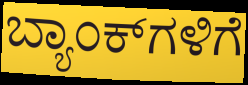
ಬ್ಯಾಂಕ್‌ಗಳಿಗೆ